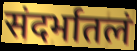
संदर्भातलं